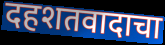
दहशतवादाचा